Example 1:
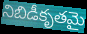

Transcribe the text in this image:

నిబిడీకృతమై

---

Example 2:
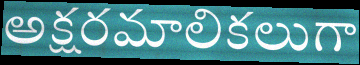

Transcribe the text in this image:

అక్షరమాలికలుగా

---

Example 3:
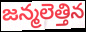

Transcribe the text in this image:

జన్మలెత్తిన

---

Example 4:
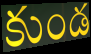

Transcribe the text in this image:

కుండ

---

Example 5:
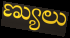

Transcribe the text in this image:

ణ్యులు